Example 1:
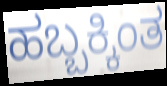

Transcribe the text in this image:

ಹಬ್ಬಕ್ಕಿಂತ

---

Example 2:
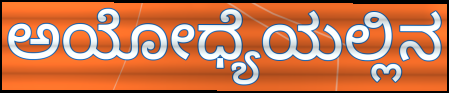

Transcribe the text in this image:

ಅಯೋಧ್ಯೆಯಲ್ಲಿನ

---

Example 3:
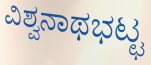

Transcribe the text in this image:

ವಿಶ್ವನಾಥಭಟ್ಟ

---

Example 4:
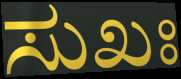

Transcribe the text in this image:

ಸುಖಃ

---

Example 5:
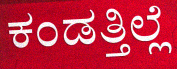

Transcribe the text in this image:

ಕಂಡತ್ತಿಲ್ಲೆ